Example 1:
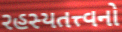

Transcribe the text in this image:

રહસ્યતત્ત્વનો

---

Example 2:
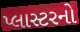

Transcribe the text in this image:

પ્લાસ્ટરનો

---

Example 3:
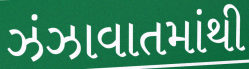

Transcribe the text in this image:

ઝંઝાવાતમાંથી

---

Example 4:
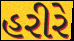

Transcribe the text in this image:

હરીરે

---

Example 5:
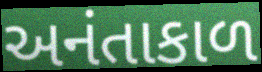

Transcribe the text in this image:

અનંતાકાળ